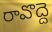
రావొద్దె